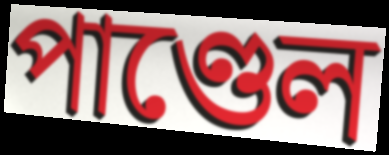
পাণ্ডেল